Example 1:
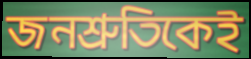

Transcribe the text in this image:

জনশ্রুতিকেই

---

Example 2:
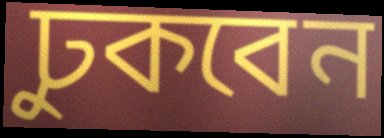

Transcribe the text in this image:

ঢুকবেন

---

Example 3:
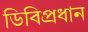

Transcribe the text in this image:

ডিবিপ্রধান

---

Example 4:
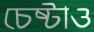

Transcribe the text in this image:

চেষ্টাও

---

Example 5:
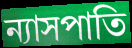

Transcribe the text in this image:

ন্যাসপাতি